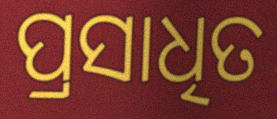
ପ୍ରସାଧିତ